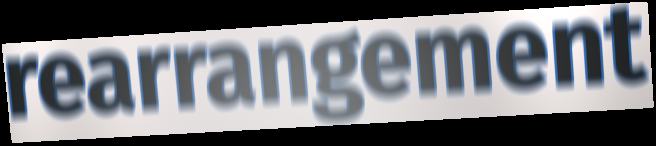
rearrangement